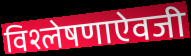
विश्लेषणाऐवजी